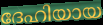
ദേഹിയായ